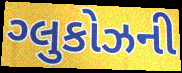
ગ્લુકોઝની